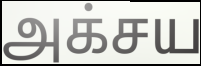
அக்சய